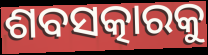
ଶବସତ୍କାରକୁ